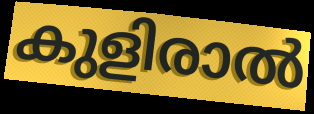
കുളിരാൽ